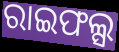
ରାଇଫଲ୍ସ